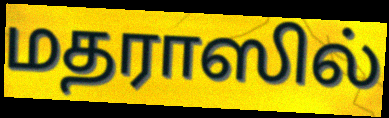
மதராஸில்